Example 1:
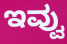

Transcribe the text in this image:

ಇವ್ವು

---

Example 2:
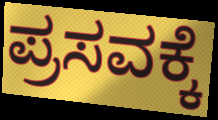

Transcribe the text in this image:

ಪ್ರಸವಕ್ಕೆ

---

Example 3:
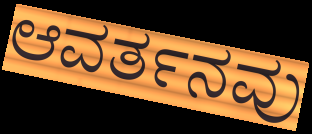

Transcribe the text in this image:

ಆವರ್ತನವು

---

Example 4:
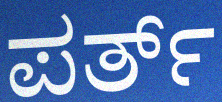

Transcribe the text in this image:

ಪರ್ತ್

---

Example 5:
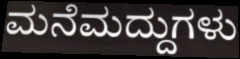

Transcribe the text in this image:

ಮನೆಮದ್ದುಗಳು